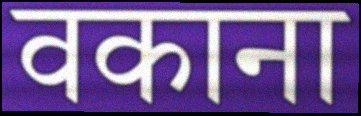
वकाना